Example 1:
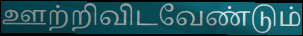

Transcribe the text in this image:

ஊற்றிவிடவேண்டும்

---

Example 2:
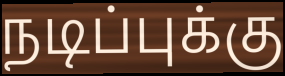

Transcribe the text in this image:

நடிப்புக்கு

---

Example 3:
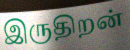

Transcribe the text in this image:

இருதிறன்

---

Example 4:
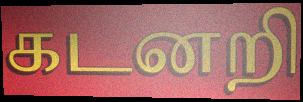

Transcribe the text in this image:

கடனறி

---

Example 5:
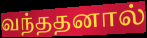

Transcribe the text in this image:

வந்ததனால்